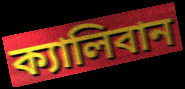
ক্যালিবান